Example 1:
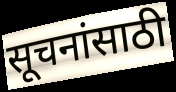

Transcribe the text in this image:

सूचनांसाठी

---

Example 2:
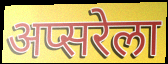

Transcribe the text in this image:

अप्सरेला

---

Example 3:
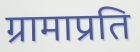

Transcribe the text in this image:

ग्रामाप्रति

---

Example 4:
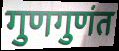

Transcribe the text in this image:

गुणगुणंत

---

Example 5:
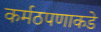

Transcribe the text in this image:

कर्मठपणाकडे